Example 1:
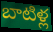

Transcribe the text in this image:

బాటిళ్ల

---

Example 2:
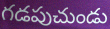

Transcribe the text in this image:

గడపుచుండు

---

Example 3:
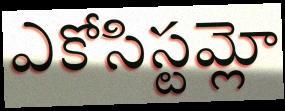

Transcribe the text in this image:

ఎకోసిస్టమ్లో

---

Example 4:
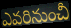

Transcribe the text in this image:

ఎవరినుంచీ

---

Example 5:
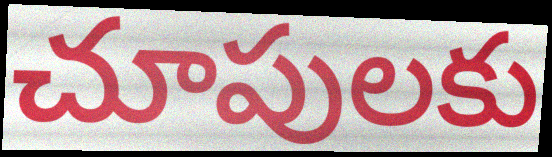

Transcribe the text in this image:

చూపులకు